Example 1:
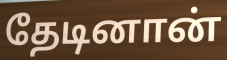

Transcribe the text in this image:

தேடினான்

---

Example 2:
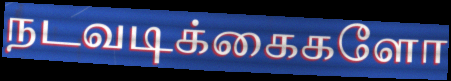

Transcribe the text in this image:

நடவடிக்கைகளோ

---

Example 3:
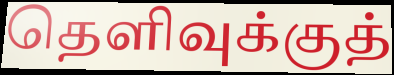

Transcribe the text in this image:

தெளிவுக்குத்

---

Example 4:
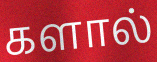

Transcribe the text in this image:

களால்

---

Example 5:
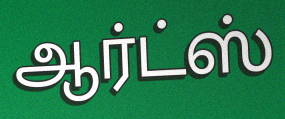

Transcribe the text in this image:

ஆர்ட்ஸ்